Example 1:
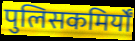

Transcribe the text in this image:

पुलिसकमिर्यों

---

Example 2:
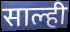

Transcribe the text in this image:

साल्ही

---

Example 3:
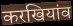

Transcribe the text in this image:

करखियांव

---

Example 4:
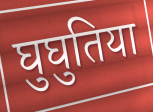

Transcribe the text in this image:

घुघुतिया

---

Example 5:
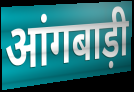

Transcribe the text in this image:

आंगबाड़ी